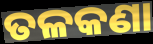
ତଳକଣା